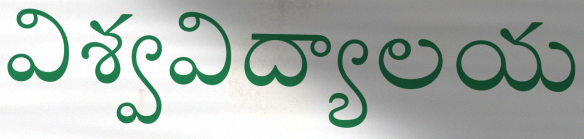
విశ్వవిద్యాలయ